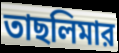
তাছলিমার